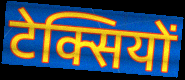
टेक्सियों